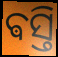
ଵସ୍ତି